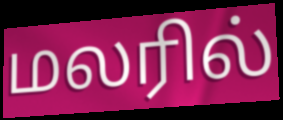
மலரில்